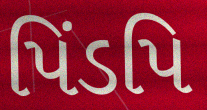
પિંડપિ